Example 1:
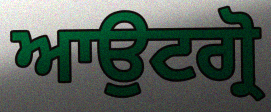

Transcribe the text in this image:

ਆਉਟਗ੍ਰੋ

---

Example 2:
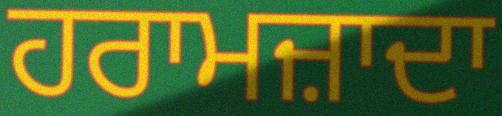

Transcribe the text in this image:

ਹਰਾਮਜ਼ਾਦਾ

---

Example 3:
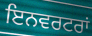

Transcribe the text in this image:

ਇਨਵਰਟਰਾਂ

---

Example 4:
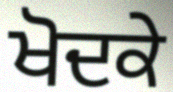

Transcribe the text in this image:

ਖੋਦਕੇ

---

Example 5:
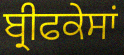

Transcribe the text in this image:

ਬ੍ਰੀਫਕੇਸਾਂ